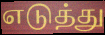
எடுத்து